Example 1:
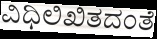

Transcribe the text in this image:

ವಿಧಿಲಿಖಿತದಂತೆ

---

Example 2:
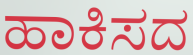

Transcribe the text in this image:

ಹಾಕಿಸದ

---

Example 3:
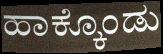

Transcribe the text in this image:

ಹಾಕ್ಕೊಂಡು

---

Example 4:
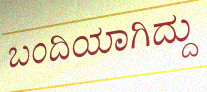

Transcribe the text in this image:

ಬಂದಿಯಾಗಿದ್ದು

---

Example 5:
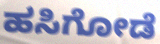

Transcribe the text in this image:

ಹಸಿಗೋಡೆ